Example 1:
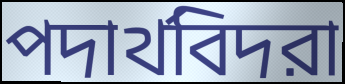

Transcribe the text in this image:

পদার্থবিদরা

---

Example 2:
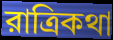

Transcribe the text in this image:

রাত্রিকথা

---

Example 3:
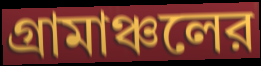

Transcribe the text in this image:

গ্রামাঞ্চলের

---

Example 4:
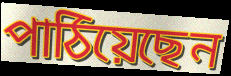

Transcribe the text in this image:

পাঠিয়েছেন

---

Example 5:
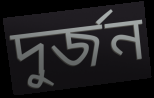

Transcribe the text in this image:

দুর্জন